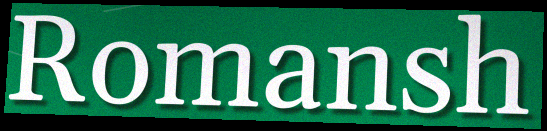
Romansh